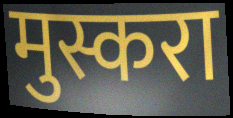
मुस्करा